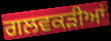
ਗਲਵਕੜੀਆਂ